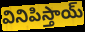
వినిపిస్తాయ్